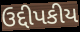
ઉદ્દીપકીય